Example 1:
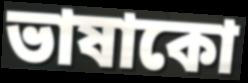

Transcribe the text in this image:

ভাষাকো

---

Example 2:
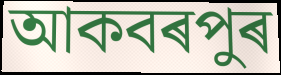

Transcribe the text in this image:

আকবৰপুৰ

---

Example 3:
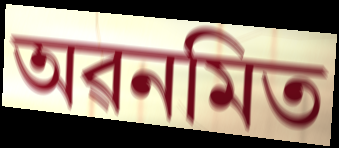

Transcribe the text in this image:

অৱনমিত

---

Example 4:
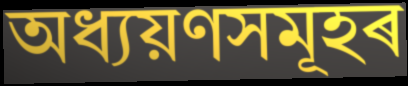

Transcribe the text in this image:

অধ্যয়ণসমূহৰ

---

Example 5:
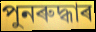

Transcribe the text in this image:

পুনৰুদ্ধাৰ